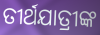
ତୀର୍ଥଯାତ୍ରୀଙ୍କ